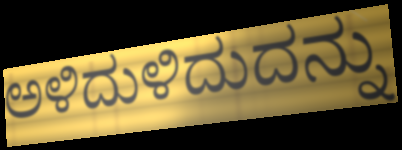
ಅಳಿದುಳಿದುದನ್ನು